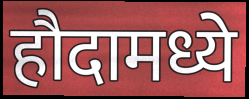
हौदामध्ये